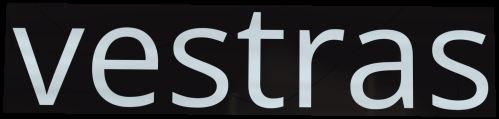
vestras